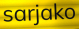
sarjako